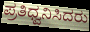
ಪ್ರತಿಧ್ವನಿಸಿದರು